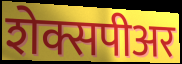
शेक्सपीअर